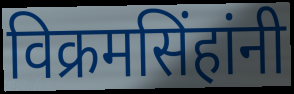
विक्रमसिंहांनी